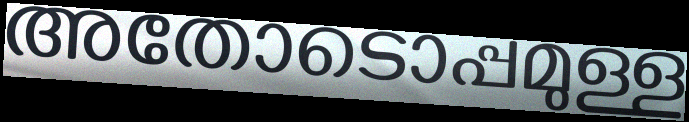
അതോടൊപ്പമുള്ള